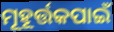
ମୂହୂର୍ତ୍ତକପାଇଁ